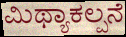
ಮಿಥ್ಯಾಕಲ್ಪನೆ